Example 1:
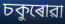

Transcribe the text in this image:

চকুৰোৱা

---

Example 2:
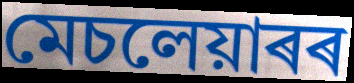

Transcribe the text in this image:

মেচলেয়াৰৰ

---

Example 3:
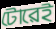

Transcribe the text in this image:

টোৱেই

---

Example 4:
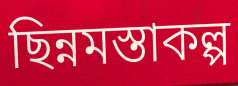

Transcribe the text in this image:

ছিন্নমস্তাকল্প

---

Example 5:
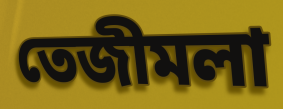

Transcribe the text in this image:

তেজীমলা